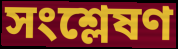
সংশ্লেষণ